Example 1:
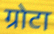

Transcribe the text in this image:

ग्रोटा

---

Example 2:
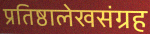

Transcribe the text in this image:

प्रतिष्ठालेखसंग्रह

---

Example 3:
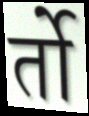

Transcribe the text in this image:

र्तो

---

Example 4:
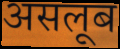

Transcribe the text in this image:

असलूब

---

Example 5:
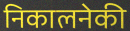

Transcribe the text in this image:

निकालनेकी